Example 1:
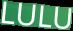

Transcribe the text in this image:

LULU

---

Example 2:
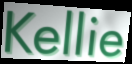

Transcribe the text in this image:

Kellie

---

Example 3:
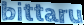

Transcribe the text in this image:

bittaru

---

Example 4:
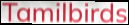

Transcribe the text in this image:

Tamilbirds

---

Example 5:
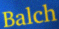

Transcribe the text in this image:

Balch